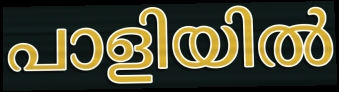
പാളിയിൽ